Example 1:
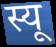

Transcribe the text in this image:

स्यू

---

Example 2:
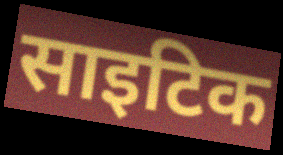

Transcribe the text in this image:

साइटिक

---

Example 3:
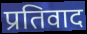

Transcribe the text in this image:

प्रतिवाद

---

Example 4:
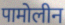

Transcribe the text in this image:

पामोलीन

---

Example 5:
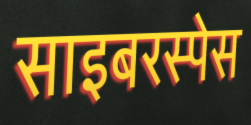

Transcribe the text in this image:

साइबरस्पेस